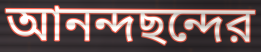
আনন্দছন্দের